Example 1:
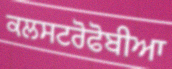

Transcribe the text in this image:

ਕਲਸਟਰੋਫੋਬੀਆ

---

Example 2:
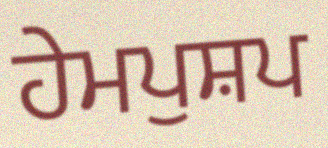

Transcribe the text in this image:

ਹੇਮਪੁਸ਼ਪ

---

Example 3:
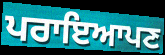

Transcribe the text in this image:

ਪਰਾਇਆਪਣ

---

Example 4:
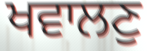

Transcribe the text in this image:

ਖਵਾਲਣੁ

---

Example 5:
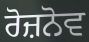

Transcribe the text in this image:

ਰੋਜ਼ਨੋਵ